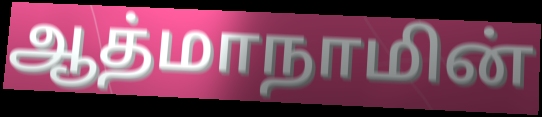
ஆத்மாநாமின்